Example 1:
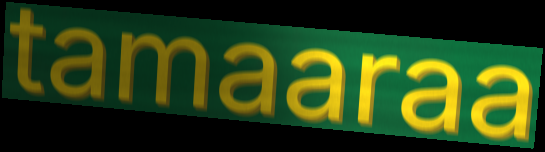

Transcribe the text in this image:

tamaaraa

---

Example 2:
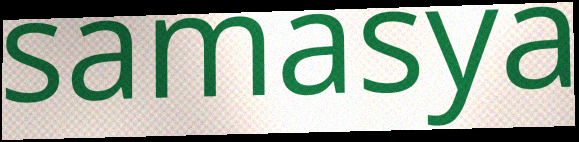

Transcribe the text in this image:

samasya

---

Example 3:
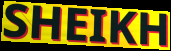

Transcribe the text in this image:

SHEIKH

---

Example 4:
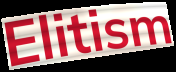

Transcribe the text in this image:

Elitism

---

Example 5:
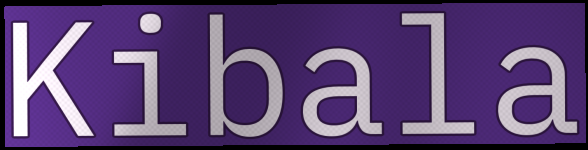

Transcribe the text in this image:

Kibala